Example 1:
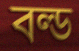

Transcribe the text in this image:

বল্ড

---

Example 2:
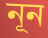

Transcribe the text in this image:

নূন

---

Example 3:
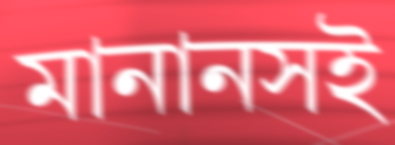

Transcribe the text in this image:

মানানসই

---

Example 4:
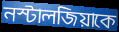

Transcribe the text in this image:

নস্টালজিয়াকে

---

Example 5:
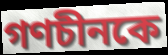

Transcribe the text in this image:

গণচীনকে